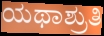
ಯಥಾಶ್ರುತಿ